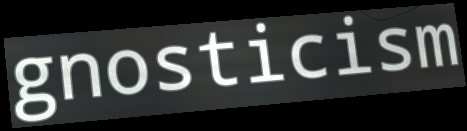
gnosticism